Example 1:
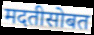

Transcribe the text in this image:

मदतीसोबत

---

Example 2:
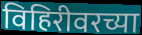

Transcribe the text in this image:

विहिरीवरच्या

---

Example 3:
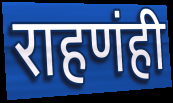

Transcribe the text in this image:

राहणंही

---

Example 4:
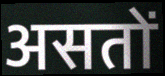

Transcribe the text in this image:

असतों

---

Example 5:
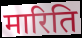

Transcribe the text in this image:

मारिति